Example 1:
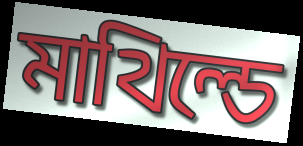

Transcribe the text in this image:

মাথিল্ডে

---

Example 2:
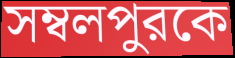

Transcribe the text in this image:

সম্বলপুরকে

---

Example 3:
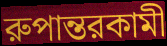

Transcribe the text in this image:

রুপান্তরকামী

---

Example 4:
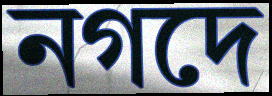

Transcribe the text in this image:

নগদে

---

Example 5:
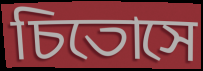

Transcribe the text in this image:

চিতোসে